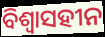
ବିଶ୍ୱାସହୀନ